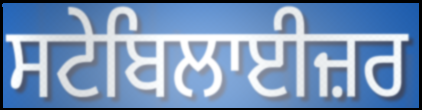
ਸਟੇਬਿਲਾਈਜ਼ਰ